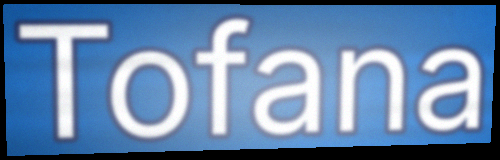
Tofana